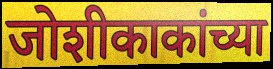
जोशीकाकांच्या